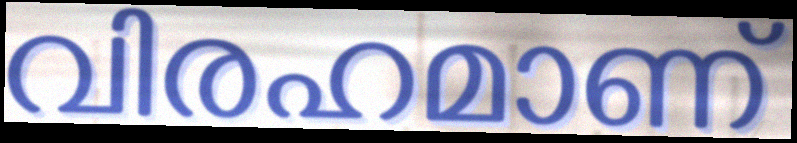
വിരഹമാണ്